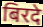
बिरदे